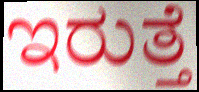
ಇರುತ್ತೆ